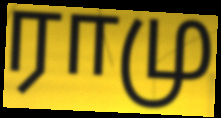
ராமு